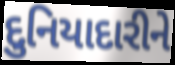
દુનિયાદારીને